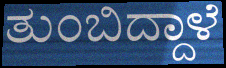
ತುಂಬಿದ್ದಾಳೆ